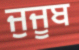
ਜੁਜੂਬ